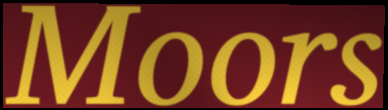
Moors